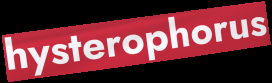
hysterophorus